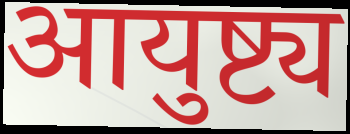
आयुष्ट्य